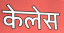
केलेस